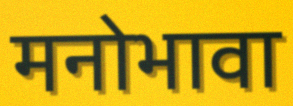
मनोभावा